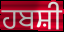
ਹਬਸ਼ੀ